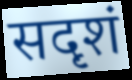
सदृशं